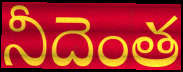
నీదెంత